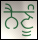
ਨੈਣੂੰ